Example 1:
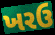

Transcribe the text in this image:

ખરઉ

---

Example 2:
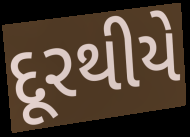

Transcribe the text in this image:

દૂરથીયે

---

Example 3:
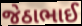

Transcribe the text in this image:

જેઠાભાઈ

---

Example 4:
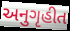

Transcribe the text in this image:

અનુગૃહીત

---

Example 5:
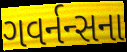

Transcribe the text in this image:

ગવર્નન્સના